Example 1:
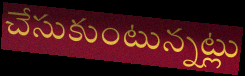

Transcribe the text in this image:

చేసుకుంటున్నట్లు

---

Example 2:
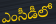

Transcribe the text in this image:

ఎంసీడీలో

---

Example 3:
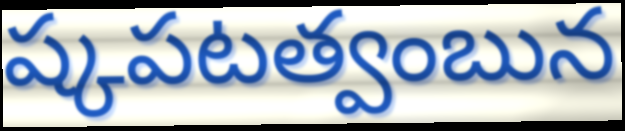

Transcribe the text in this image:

ష్కపటత్వంబున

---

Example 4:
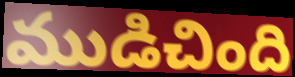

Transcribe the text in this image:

ముడిచింది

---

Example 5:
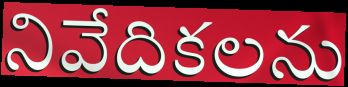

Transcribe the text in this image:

నివేదికలను